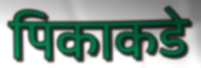
पिकाकडे